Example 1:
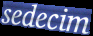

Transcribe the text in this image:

sedecim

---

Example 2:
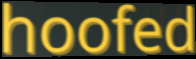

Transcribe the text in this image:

hoofed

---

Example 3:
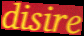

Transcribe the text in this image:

disire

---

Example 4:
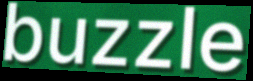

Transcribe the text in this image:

buzzle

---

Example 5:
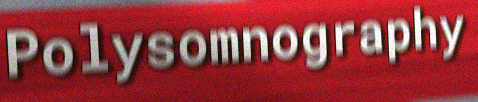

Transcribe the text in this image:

Polysomnography